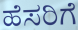
ಹೆಸರಿಗೆ